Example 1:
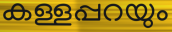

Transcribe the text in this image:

കള്ളപ്പറയും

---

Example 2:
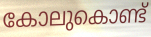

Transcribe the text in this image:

കോലുകൊണ്ട്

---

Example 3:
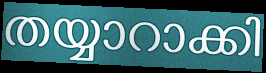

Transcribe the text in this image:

തയ്യാറാക്കി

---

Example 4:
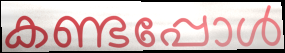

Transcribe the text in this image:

കണ്ടപ്പോൾ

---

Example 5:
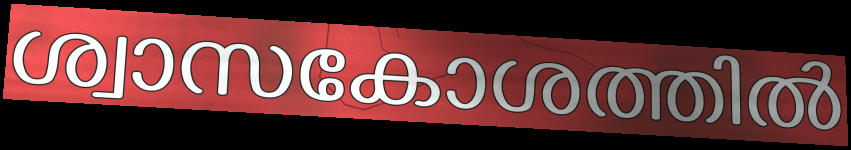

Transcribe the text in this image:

ശ്വാസകോശത്തിൽ